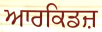
ਆਰਕਿਡਜ਼